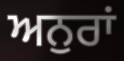
ਅਨੁਰਾਂ